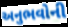
અનુભવોની